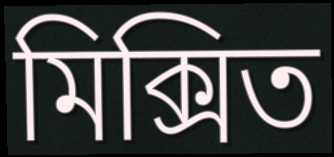
মিক্সিত